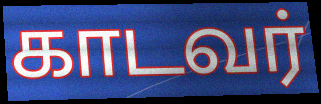
காடவர்